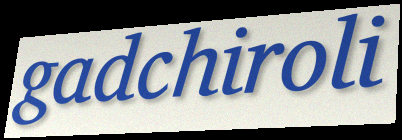
gadchiroli